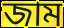
জাম